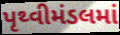
પૃથ્વીમંડલમાં